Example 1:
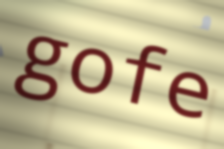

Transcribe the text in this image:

gofe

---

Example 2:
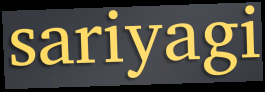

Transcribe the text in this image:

sariyagi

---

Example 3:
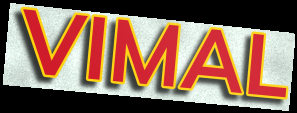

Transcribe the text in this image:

VIMAL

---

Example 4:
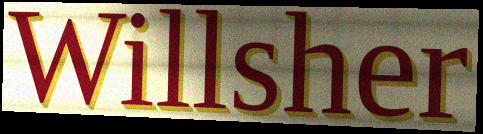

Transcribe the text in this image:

Willsher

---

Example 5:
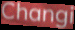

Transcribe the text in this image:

Changi